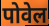
पोवेल